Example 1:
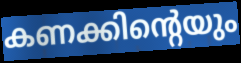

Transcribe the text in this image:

കണക്കിന്റെയും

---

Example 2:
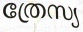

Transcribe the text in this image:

ത്രേസ്യ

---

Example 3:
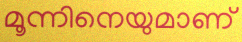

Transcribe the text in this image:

മൂന്നിനെയുമാണ്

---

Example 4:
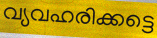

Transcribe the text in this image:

വ്യവഹരിക്കട്ടെ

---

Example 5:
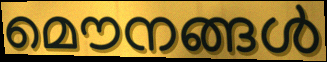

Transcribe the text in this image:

മൌനങ്ങൾ